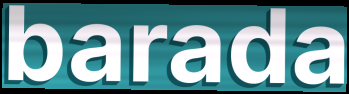
barada